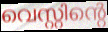
വെസ്റ്റിന്റെ